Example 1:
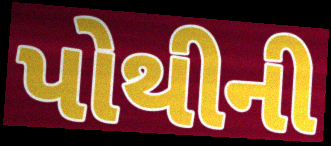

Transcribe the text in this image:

પોથીની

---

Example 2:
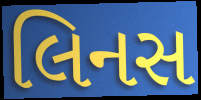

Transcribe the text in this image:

લિનસ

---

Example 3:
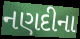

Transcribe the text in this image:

નણદીના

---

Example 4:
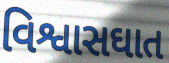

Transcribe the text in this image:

વિશ્વાસઘાત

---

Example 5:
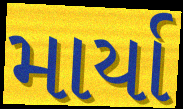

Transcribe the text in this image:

માર્યા